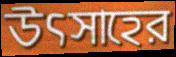
উৎসাহের